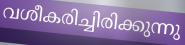
വശീകരിച്ചിരിക്കുന്നു